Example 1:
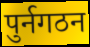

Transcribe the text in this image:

पुर्नगठन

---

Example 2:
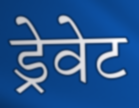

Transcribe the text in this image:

ड्रेवेट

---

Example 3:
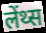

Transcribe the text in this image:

लेंथ्स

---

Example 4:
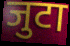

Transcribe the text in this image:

जुटा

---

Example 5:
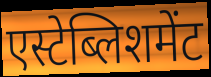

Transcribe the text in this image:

एस्टेब्लिशमेंट